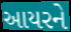
આયરને